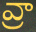
వ్రా